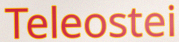
Teleostei